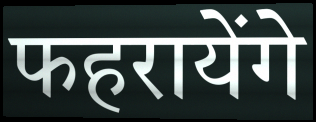
फहरायेंगे